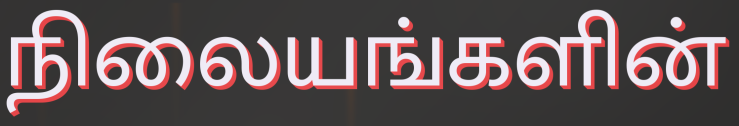
நிலையங்களின்